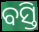
ବସ୍ତି